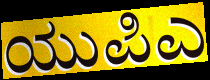
ಯುಪಿಎ